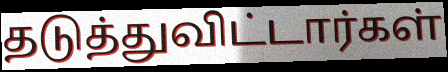
தடுத்துவிட்டார்கள்